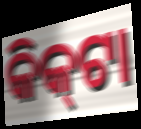
କିକ୍‍ଟା